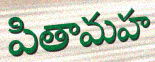
పితామహ